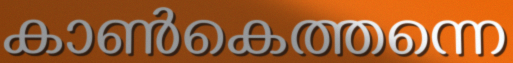
കാൺകെത്തന്നെ